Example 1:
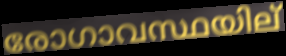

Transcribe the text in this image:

രോഗാവസ്ഥയില്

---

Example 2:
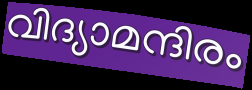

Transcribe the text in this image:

വിദ്യാമന്ദിരം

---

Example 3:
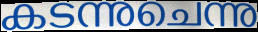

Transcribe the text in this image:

കടന്നുചെന്നു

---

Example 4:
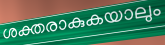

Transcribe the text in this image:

ശക്തരാകുകയാലും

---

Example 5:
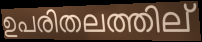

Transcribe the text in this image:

ഉപരിതലത്തില്